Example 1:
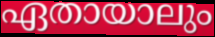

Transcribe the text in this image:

ഏതായാലും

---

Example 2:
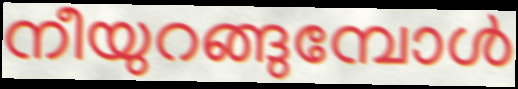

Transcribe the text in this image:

നീയുറങ്ങുമ്പോൾ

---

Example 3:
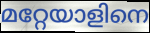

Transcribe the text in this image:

മറ്റേയാളിനെ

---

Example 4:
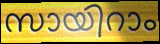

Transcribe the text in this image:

സായിറാം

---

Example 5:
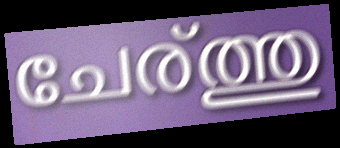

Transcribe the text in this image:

ചേര്ത്തു